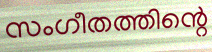
സംഗീതത്തിന്റെ